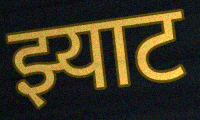
झ्याट